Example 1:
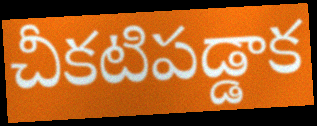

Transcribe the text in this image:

చీకటిపడ్డాక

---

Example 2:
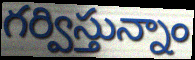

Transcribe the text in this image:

గర్విస్తున్నాం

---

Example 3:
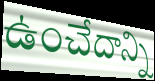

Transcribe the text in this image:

ఉంచేదాన్ని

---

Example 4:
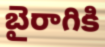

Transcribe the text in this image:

బైరాగికి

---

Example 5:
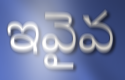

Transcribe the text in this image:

ఇవైవ